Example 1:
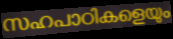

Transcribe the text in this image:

സഹപാഠികളെയും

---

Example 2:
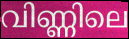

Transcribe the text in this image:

വിണ്ണിലെ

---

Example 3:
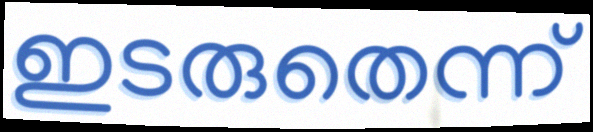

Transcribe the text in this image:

ഇടരുതെന്ന്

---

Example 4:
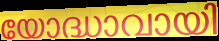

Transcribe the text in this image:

യോദ്ധാവായി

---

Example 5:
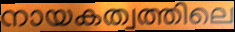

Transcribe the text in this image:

നായകത്വത്തിലെ